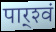
पार्श्वं